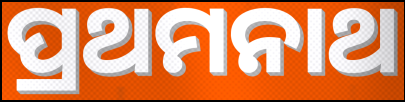
ପ୍ରଥମନାଥ